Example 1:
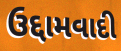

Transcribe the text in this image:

ઉદ્દામવાદી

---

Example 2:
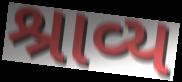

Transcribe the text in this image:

શ્રાવ્ય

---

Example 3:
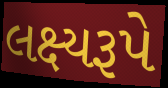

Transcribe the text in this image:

લક્ષ્યરૂપે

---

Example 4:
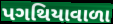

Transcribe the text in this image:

પગથિયાવાળા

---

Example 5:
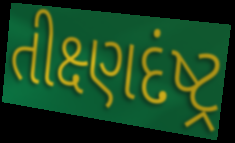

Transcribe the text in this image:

તીક્ષ્ણદંષ્ટ્ર